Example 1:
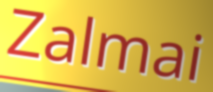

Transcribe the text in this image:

Zalmai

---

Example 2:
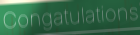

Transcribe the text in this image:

Congatulations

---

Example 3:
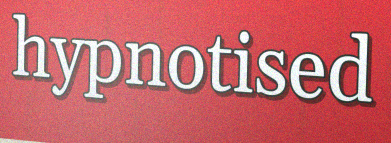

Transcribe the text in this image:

hypnotised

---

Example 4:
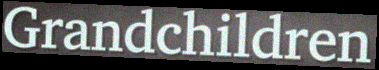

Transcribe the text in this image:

Grandchildren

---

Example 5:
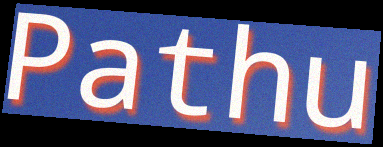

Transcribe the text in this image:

Pathu